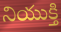
నియుక్తి